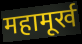
महामूर्ख